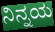
ನಿನ್ನಯ